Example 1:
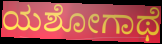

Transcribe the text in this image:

ಯಶೋಗಾಥೆ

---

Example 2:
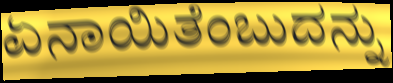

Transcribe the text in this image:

ಏನಾಯಿತೆಂಬುದನ್ನು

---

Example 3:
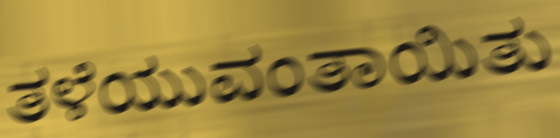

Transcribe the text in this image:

ತಳೆಯುವಂತಾಯಿತು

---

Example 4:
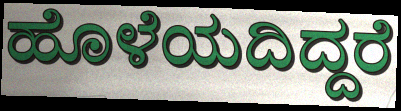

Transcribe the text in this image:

ಹೊಳೆಯದಿದ್ದರೆ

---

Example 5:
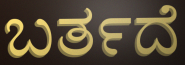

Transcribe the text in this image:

ಬರ್ತದೆ